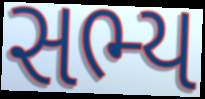
સભ્ય